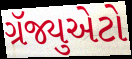
ગ્રૅજ્યુએટો